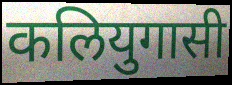
कलियुगासी